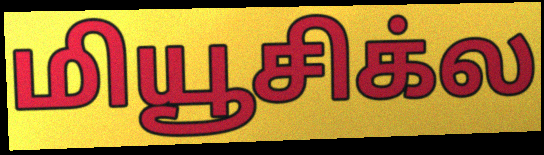
மியூசிக்ல